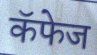
कॅफेज